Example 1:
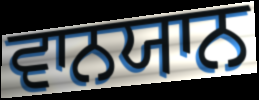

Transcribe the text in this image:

ਵਾਨਯਾਨ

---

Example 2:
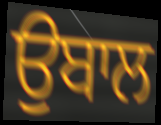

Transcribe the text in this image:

ਉਬਾਲ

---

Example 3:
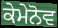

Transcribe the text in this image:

ਕੇਮੇਨੋਵ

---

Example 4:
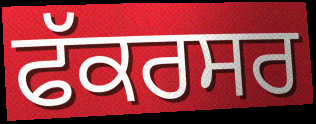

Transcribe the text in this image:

ਫੱਕਰਸਰ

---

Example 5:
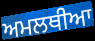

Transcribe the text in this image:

ਅਮਲਥੀਆ